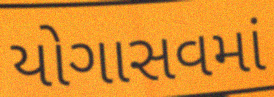
યોગાસવમાં